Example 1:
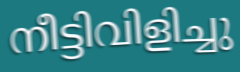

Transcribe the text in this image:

നീട്ടിവിളിച്ചു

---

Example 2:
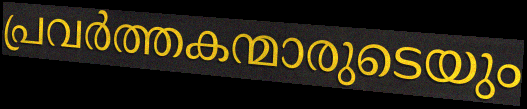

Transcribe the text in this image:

പ്രവർത്തകന്മാരുടെയും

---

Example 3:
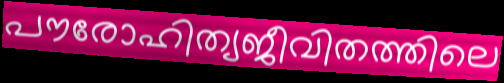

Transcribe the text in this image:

പൗരോഹിത്യജീവിതത്തിലെ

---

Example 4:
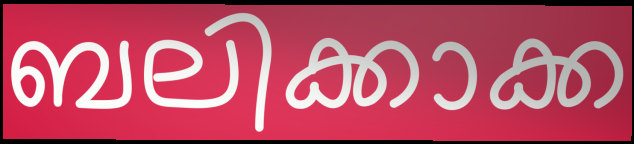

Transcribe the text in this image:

ബലിക്കാക്ക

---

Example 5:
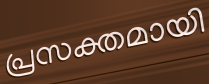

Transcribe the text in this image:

പ്രസക്തമായി